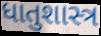
ધાતુશાસ્ત્ર